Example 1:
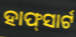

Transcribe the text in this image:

ହାଫ୍‍ସାର୍ଟ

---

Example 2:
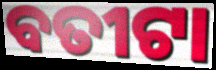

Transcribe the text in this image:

ବତୀଟା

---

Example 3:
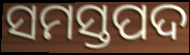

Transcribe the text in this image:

ସମସ୍ତପଦ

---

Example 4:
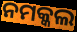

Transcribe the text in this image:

ନମକ୍କଲ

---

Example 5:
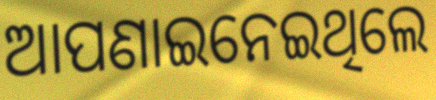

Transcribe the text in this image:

ଆପଣାଇନେଇଥିଲେ